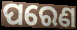
ପରେଣ